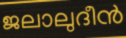
ജലാലുദീൻ